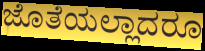
ಜೊತೆಯಲ್ಲಾದರೂ